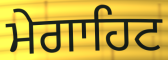
ਮੇਗਾਹਿਟ